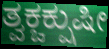
ತ್ವಕ್ಚಕ್ಷುಷೀ